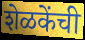
शेळकेंची